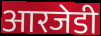
आरजेडी